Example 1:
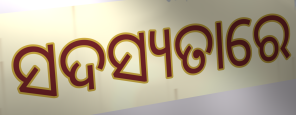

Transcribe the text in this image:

ସଦସ୍ୟତାରେ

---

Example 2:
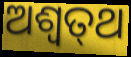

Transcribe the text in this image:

ଅଶ୍ଵତ୍‍ଥ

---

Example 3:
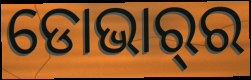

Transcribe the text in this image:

ଡୋଭାର୍‌ର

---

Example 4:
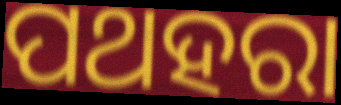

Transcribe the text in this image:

ପଥହରା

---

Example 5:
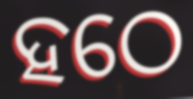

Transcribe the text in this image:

ହଠେ